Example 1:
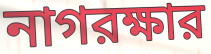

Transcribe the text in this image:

নাগরক্ষার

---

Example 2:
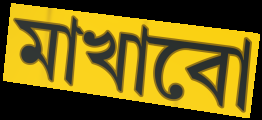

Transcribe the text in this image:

মাখাবো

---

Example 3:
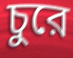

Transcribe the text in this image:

চুরে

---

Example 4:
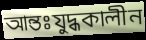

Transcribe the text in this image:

আন্তঃযুদ্ধকালীন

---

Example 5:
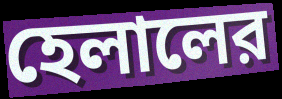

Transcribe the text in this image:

হেলালের